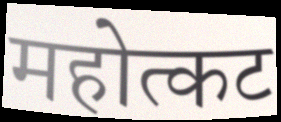
महोत्कट